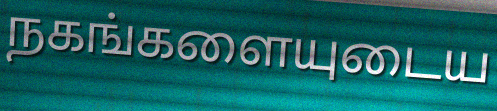
நகங்களையுடைய